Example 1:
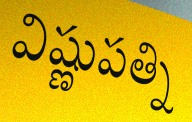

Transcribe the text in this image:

విష్ణుపత్ని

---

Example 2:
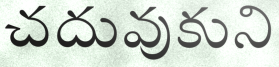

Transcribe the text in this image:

చదువుకుని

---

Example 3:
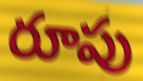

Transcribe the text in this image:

రూపు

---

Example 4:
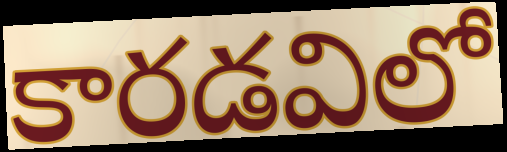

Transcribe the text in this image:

కారడవిలో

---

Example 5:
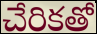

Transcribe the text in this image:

చేరికతో